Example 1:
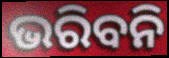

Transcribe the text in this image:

ଭରିବନି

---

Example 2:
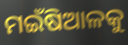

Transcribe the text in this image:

ମଇଁଷିଆଳକୁ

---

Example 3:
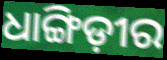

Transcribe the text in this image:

ଧାଙ୍ଗିଡ଼ୀର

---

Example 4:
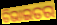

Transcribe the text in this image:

ଡିଭାଇଡର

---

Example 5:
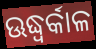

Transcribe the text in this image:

ଊଦ୍ଧ୍ୱର୍କାଳ